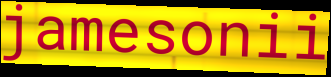
jamesonii